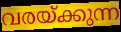
വരയ്ക്കുന്ന